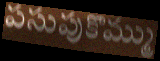
పసుపుకొమ్ము